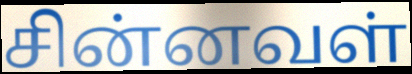
சின்னவள்